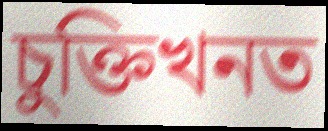
চুক্তিখনত